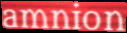
amnion